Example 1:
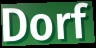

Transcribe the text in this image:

Dorf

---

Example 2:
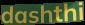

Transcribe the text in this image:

dashthi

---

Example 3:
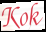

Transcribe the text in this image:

Kok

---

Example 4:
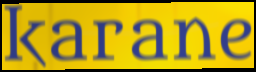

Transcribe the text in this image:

karane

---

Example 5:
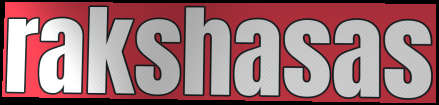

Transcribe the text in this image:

rakshasas